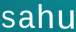
sahu